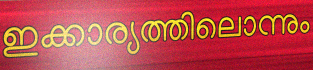
ഇക്കാര്യത്തിലൊന്നും